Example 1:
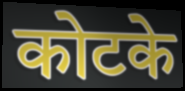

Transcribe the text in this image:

कोटके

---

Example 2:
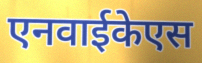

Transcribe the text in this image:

एनवाईकेएस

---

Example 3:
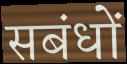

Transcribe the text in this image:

सबंधों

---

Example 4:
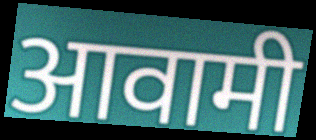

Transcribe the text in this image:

आवामी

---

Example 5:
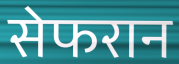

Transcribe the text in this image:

सेफरान